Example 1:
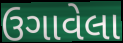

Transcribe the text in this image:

ઉગાવેલા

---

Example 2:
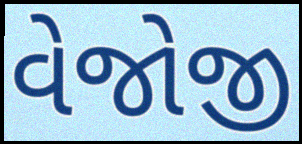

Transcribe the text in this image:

વેજોજી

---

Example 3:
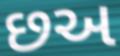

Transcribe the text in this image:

છઅ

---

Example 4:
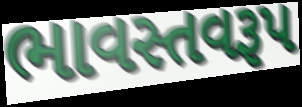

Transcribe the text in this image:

ભાવસ્તવરૂપ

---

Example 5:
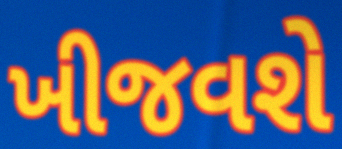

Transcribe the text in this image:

ખીજવશે